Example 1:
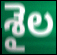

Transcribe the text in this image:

శైల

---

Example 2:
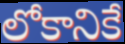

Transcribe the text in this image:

లోకానికే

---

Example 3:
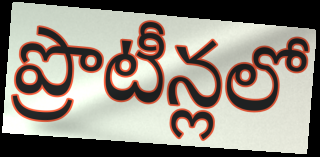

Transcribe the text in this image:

ప్రొటీన్లలో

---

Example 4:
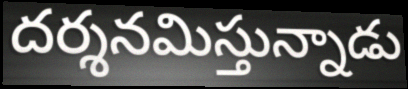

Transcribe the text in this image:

దర్శనమిస్తున్నాడు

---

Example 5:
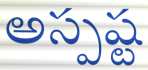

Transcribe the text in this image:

అస్పష్ట